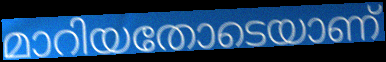
മാറിയതോടെയാണ്